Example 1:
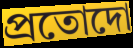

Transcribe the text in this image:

প্রতোদো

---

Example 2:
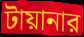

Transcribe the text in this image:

টায়ানার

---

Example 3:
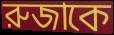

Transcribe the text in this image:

রুজাকে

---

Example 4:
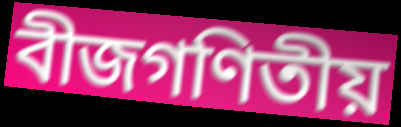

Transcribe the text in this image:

বীজগণিতীয়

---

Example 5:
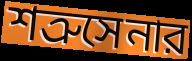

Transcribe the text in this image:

শত্রুসেনার